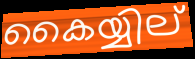
കൈയ്യില്